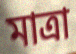
মাত্ৰা